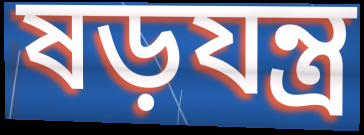
ষড়যন্ত্ৰ